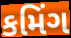
કમિંગ